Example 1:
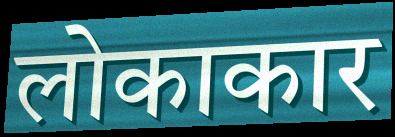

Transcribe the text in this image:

लोकाकार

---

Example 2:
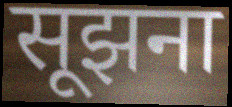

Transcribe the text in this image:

सूझना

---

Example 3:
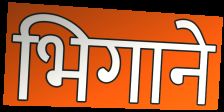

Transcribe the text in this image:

भिगाने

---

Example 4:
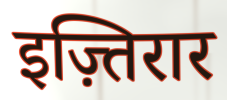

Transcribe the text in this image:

इज़्तिरार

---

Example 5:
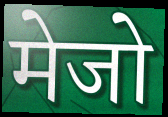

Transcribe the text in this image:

मेजो